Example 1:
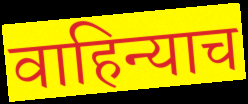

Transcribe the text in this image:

वाहिन्याच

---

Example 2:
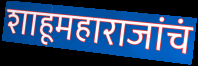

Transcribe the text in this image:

शाहूमहाराजांचं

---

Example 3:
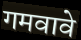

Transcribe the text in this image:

गमवावे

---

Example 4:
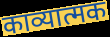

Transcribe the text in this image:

काव्यात्मक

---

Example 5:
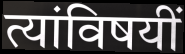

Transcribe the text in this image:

त्यांविषयीं